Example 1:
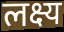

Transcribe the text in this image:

लक्ष्य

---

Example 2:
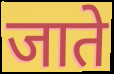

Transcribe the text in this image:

जाते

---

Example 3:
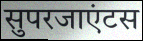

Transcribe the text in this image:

सुपरजाएंटस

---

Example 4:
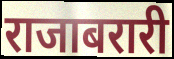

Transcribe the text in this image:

राजाबरारी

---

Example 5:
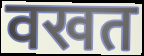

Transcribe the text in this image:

वखत